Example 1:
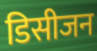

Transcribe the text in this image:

डिसीजन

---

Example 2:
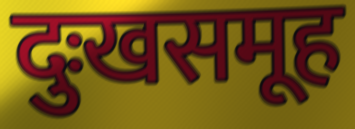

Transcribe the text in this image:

दुःखसमूह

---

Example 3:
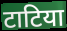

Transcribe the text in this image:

टाटिया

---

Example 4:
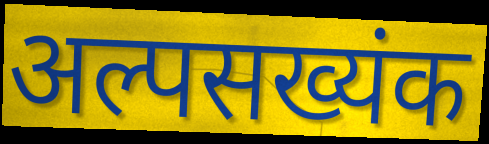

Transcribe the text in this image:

अल्पसख्यंक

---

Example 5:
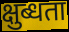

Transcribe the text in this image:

क्षुब्धता